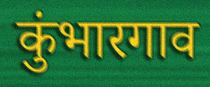
कुंभारगाव